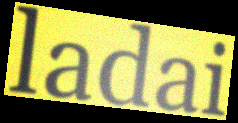
ladai